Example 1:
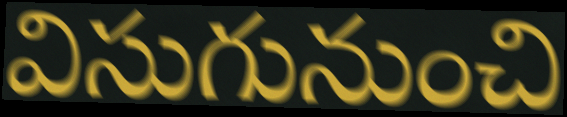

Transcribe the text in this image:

విసుగునుంచి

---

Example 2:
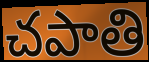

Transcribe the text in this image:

చపాతి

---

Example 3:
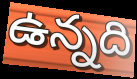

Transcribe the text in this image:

ఉన్నది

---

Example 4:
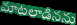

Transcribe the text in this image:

మాటలాడినను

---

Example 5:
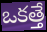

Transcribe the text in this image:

ఒకత్తే